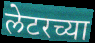
लेटरच्या